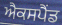
ਐਕਸਪੈਂਡ